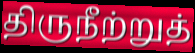
திருநீற்றுத்